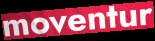
moventur